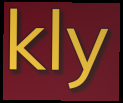
kly